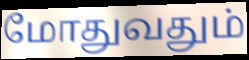
மோதுவதும்